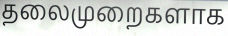
தலைமுறைகளாக